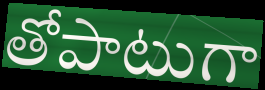
తోపాటుగా